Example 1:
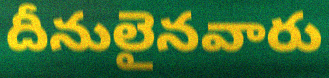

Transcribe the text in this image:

దీనులైనవారు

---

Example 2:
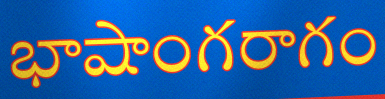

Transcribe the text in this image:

భాషాంగరాగం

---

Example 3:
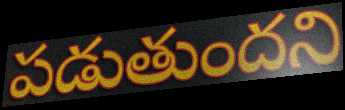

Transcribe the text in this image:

పడుతుందని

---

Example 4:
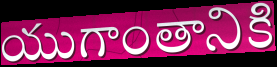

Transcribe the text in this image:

యుగాంతానికి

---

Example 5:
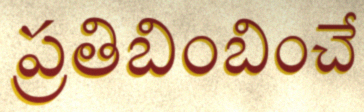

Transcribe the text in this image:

ప్రతిబింబించే